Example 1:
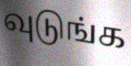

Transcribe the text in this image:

வுடுங்க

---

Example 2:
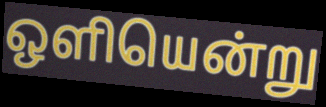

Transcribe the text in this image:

ஒளியென்று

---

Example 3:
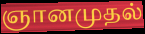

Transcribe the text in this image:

ஞானமுதல்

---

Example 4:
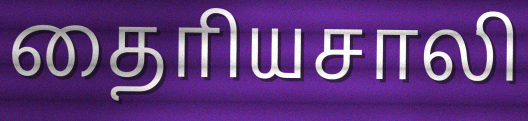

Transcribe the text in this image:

தைரியசாலி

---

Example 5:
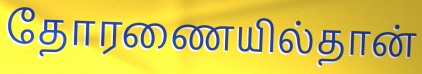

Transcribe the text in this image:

தோரணையில்தான்